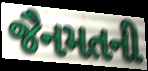
જૈનમતની